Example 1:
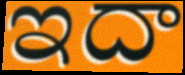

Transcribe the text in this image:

ఇదా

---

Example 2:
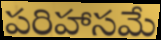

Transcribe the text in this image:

పరిహాసమే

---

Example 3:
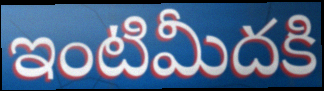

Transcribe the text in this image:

ఇంటిమీదకి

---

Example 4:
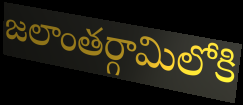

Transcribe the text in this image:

జలాంతర్గామిలోకి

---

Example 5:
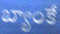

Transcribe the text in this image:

బ్యాంకే